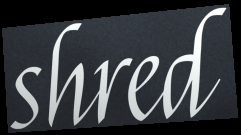
shred